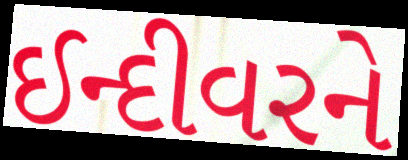
ઈન્દીવરને